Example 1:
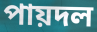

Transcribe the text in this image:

পায়দল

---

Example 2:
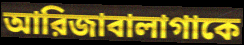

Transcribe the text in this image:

আরিজাবালাগাকে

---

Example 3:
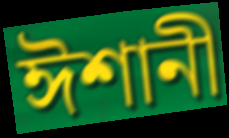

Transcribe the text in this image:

ঈশানী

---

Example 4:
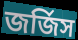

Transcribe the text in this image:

জর্জিস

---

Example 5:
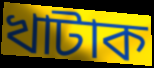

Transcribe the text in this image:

খাটাক